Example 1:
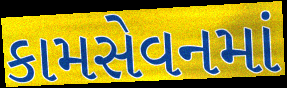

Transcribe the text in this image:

કામસેવનમાં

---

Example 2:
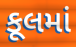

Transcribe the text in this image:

કૂલમાં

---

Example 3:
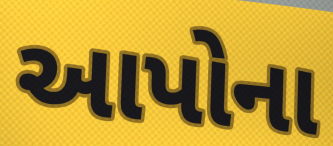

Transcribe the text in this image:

આપોના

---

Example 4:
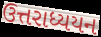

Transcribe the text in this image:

ઉત્તરાધ્યયન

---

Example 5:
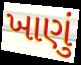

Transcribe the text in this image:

ખાણું